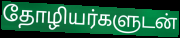
தோழியர்களுடன்